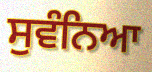
ਸੁਵੰਨਿਆ